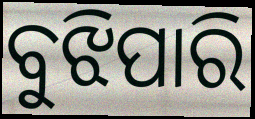
ବୁଝିପାରି